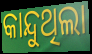
କାନ୍ଦୁଥିଲା